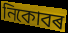
নিকোবৰ